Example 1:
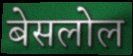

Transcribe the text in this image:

बेसलोल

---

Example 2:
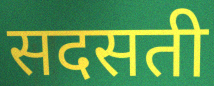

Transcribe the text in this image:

सदसती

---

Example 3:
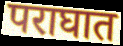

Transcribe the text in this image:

पराघात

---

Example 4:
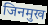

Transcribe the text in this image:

जिनमुख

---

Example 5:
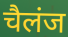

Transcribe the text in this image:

चैलंज